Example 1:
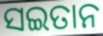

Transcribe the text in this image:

ସଇତାନ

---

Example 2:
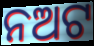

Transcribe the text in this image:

ନଅଟ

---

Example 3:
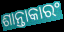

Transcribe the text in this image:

ଶାନ୍ତାକାରଂ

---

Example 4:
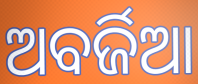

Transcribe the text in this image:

ଅବର୍ଜିଆ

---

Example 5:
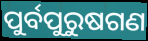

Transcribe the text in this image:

ପୁର୍ବପୁରୁଷଗଣ